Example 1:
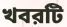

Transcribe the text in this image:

খবরটি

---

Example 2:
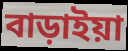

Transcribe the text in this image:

বাড়াইয়া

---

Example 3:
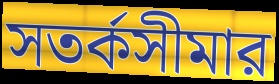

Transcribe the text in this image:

সতর্কসীমার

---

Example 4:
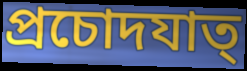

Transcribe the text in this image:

প্রচোদযাত্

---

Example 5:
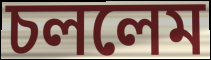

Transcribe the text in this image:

চললেম